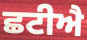
ਛਟੀਐ